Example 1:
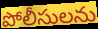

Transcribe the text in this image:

పోలీసులను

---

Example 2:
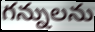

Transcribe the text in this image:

గన్నులను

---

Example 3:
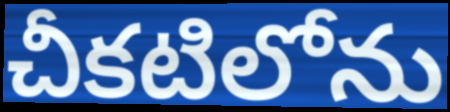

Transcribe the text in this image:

చీకటిలోను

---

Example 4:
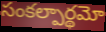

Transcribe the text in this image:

సంకల్పార్థమో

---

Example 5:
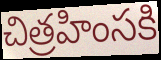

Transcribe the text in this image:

చిత్రహింసకి